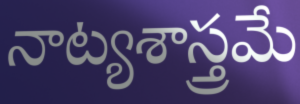
నాట్యశాస్త్రమే